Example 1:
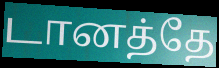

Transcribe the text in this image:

டானத்தே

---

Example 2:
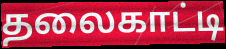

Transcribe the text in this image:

தலைகாட்டி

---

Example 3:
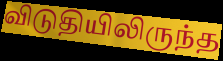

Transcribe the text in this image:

விடுதியிலிருந்த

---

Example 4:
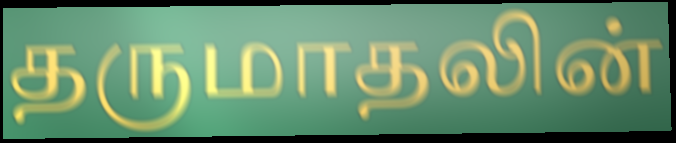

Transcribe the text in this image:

தருமாதலின்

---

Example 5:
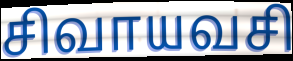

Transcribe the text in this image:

சிவாயவசி